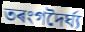
তৰংগদৈৰ্ঘ্য